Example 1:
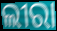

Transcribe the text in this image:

ଲୀରା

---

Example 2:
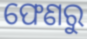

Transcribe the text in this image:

ଫେଣରୁ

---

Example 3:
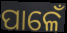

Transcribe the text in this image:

ପାଳେଁ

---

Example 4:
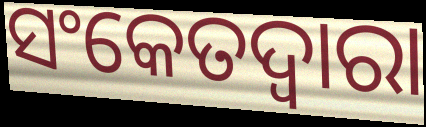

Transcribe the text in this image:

ସଂକେତଦ୍ୱାରା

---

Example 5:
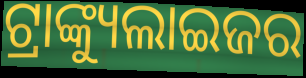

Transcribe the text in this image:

ଟ୍ରାଙ୍କ୍ୟୁଲାଇଜର